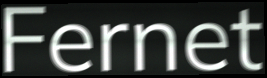
Fernet